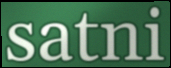
satni